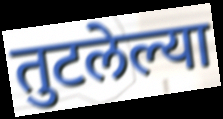
तुटलेल्या